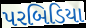
પરબિડિયા